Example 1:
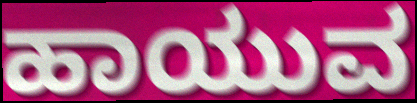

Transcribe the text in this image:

ಹಾಯುವ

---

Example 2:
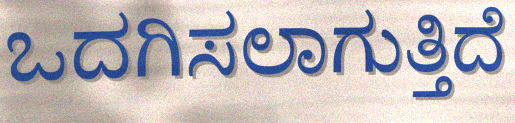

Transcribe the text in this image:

ಒದಗಿಸಲಾಗುತ್ತಿದೆ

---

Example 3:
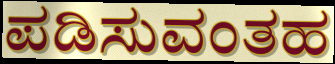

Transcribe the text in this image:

ಪಡಿಸುವಂತಹ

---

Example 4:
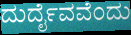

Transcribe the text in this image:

ದುರ್ದೈವವೆಂದು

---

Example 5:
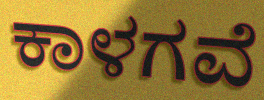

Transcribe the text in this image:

ಕಾಳಗವೆ